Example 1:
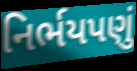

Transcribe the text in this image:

નિર્ભયપણું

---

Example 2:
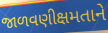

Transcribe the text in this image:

જાળવણીક્ષમતાને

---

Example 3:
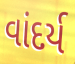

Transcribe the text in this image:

વાંદર્ય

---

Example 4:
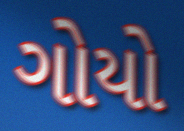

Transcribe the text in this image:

ગોયો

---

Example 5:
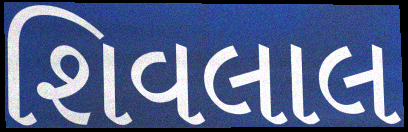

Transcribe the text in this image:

શિવલાલ